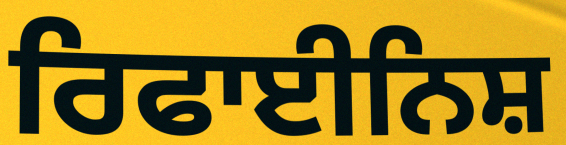
ਰਿਫਾਈਨਿਸ਼